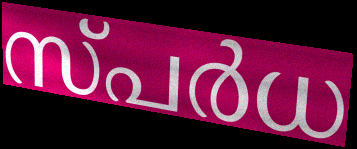
സ്പർധ